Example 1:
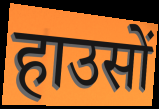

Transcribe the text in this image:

हाउसों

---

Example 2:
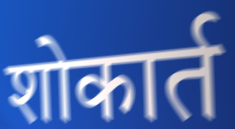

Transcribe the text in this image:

शोकार्त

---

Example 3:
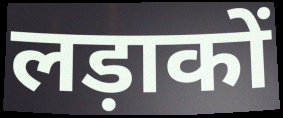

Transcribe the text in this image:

लड़ाकों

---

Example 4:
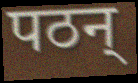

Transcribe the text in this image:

पठन्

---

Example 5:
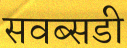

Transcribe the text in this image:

सवब्सडी